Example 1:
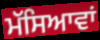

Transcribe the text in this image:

ਮੱਸਿਆਵਾਂ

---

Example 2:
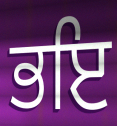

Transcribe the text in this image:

ਭਇ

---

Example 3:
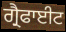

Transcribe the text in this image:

ਗ੍ਰੈਫਾਈਟ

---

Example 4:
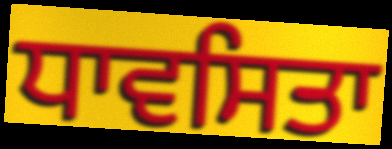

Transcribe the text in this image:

ਧਾਵਸਿਤਾ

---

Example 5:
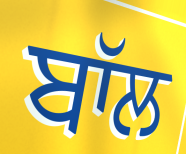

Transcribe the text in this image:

ਬਾੱਲ